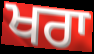
ਖਰਾ